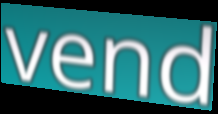
vend